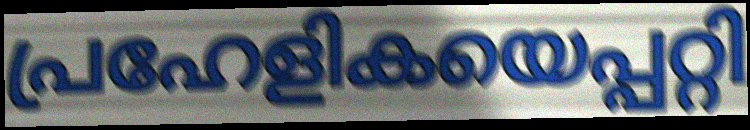
പ്രഹേളികയെപ്പറ്റി